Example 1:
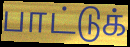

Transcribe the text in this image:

பாட்டுக்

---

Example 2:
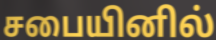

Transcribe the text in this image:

சபையினில்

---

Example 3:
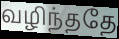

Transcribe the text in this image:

வழிந்ததே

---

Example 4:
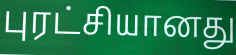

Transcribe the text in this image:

புரட்சியானது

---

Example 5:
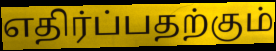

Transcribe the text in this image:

எதிர்ப்பதற்கும்